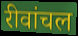
रीवांचल